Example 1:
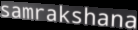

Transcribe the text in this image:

samrakshana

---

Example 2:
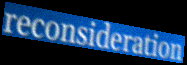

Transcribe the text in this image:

reconsideration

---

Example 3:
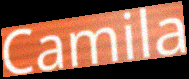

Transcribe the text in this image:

Camila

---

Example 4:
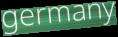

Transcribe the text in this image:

germany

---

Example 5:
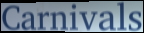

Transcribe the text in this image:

Carnivals